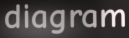
diagram